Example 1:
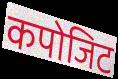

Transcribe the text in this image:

कपोजिट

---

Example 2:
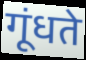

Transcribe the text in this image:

गूंधते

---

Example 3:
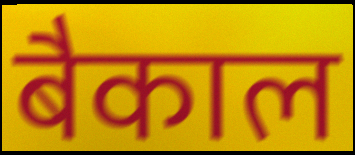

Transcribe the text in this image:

बैकाल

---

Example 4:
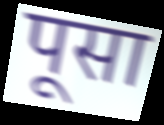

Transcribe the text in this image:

पूसा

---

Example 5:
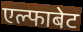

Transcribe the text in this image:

एल्फाबेट